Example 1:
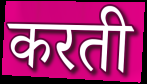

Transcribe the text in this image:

करती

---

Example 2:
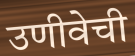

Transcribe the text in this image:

उणीवेची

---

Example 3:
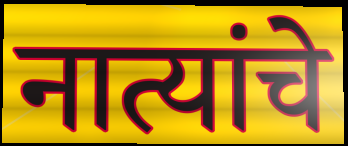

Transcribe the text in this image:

नात्यांचे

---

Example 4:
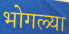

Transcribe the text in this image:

भोगल्या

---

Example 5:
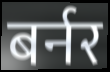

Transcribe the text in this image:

बर्नर